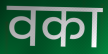
वका